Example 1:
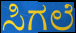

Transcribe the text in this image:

ಸಿಗಲೆ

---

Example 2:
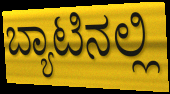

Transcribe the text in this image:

ಬ್ಯಾಟಿನಲ್ಲಿ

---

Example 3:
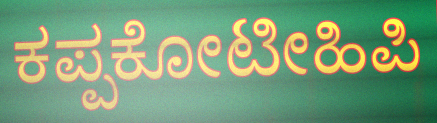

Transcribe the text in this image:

ಕಪ್ಪಕೋಟೀಹಿಪಿ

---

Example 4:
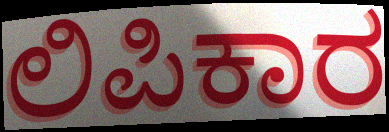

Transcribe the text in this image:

ಲಿಪಿಕಾರ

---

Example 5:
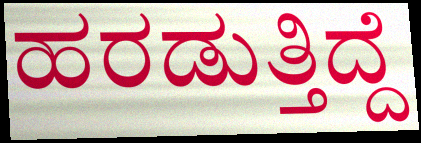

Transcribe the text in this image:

ಹರಡುತ್ತಿದ್ದೆ